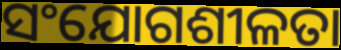
ସଂଯୋଗଶୀଳତା